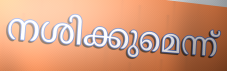
നശിക്കുമെന്ന്